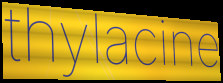
thylacine